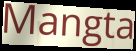
Mangta